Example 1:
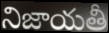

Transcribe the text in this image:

నిజాయతీ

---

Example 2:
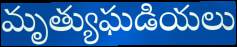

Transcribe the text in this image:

మృత్యుఘడియలు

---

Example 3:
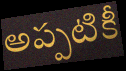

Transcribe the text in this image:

అప్పటికీ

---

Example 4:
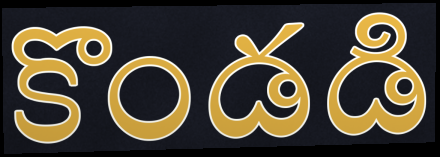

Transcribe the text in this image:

కొండడి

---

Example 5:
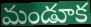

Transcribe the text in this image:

మండూక